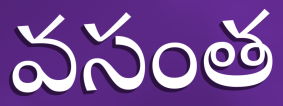
వసంత